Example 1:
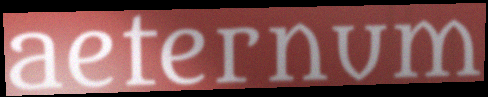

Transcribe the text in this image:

aeternum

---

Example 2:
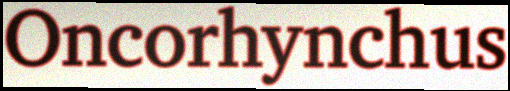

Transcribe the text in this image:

Oncorhynchus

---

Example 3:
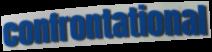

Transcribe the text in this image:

confrontational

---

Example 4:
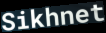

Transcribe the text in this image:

Sikhnet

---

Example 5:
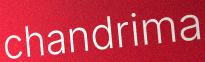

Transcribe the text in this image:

chandrima